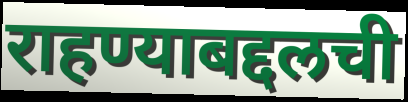
राहण्याबद्दलची